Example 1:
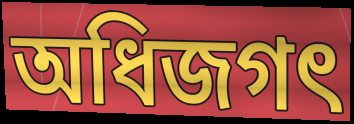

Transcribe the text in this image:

অধিজগৎ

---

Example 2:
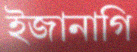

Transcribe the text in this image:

ইজানাগি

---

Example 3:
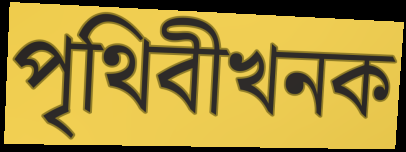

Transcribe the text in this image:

পৃথিবীখনক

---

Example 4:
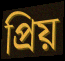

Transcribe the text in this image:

প্ৰিয়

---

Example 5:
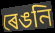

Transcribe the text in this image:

ৰেঙনি